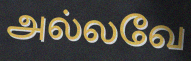
அல்லவே